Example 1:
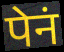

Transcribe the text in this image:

पेनं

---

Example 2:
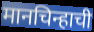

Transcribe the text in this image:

मानचिन्हाची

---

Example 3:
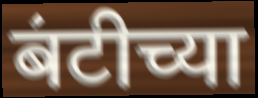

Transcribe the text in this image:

बंटीच्या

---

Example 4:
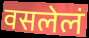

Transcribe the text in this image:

वसलेलं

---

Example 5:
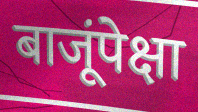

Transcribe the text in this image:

बाजूंपेक्षा